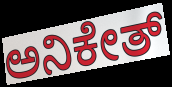
ಅನಿಕೇತ್